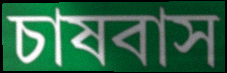
চাষবাস